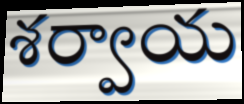
శర్వాయ